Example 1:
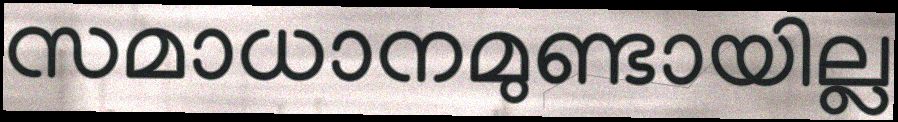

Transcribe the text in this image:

സമാധാനമുണ്ടായില്ല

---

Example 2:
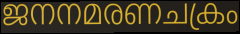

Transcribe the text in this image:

ജനനമരണചക്രം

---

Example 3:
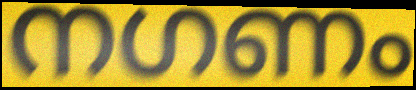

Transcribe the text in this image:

നഗണം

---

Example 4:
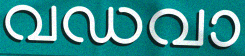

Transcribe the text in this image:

വഡവാ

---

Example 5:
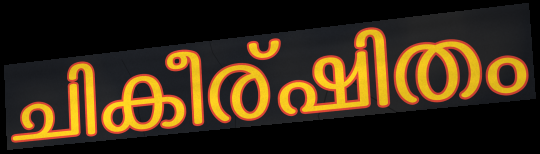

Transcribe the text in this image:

ചികീര്ഷിതം